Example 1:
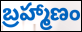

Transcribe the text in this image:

బ్రహ్మాణం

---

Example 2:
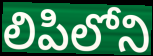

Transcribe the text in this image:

లిపిలోని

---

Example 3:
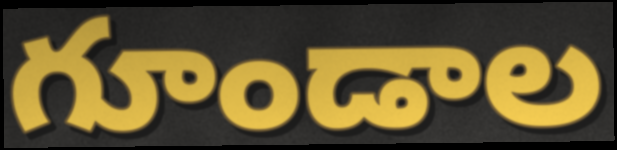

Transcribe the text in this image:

గూండాల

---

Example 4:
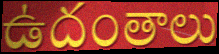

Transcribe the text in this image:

ఉదంతాలు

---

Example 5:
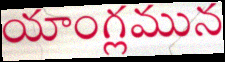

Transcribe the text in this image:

యాంగ్లమున